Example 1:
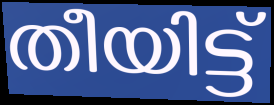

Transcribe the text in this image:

തീയിട്ട്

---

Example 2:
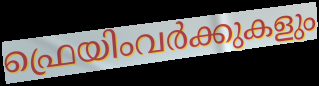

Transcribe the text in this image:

ഫ്രെയിംവർക്കുകളും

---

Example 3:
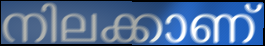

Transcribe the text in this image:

നിലക്കാണ്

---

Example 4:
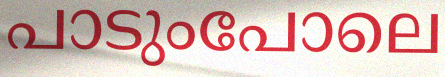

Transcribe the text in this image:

പാടുംപോലെ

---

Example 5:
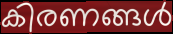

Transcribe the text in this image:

കിരണങ്ങൾ